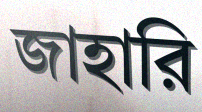
জাহারি